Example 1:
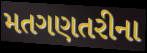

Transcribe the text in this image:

મતગણતરીના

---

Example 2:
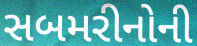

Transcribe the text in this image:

સબમરીનોની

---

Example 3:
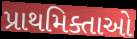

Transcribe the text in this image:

પ્રાથમિક્તાઓ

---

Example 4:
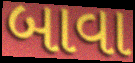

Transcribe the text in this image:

બાવા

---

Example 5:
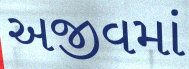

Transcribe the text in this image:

અજીવમાં